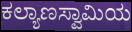
ಕಲ್ಯಾಣಸ್ವಾಮಿಯ